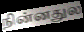
நின்னதுல